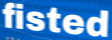
fisted